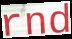
rnd